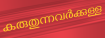
കരുതുന്നവർക്കുള്ള